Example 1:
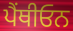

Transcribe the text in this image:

ਪੈਂਥੀਓਨ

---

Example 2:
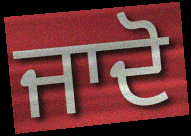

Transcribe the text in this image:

ਜਾਦੋ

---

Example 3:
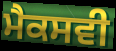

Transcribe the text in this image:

ਮੈਕਸਵੀ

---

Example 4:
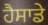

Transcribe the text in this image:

ਹੈਸਾਡੇ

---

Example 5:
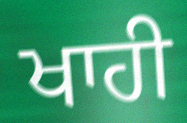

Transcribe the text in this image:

ਖਾਹੀ